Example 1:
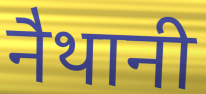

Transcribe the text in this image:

नैथानी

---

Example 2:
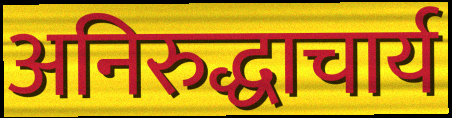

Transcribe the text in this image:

अनिरुद्धाचार्य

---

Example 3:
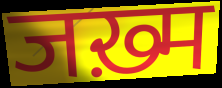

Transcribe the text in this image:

जख़्म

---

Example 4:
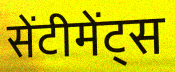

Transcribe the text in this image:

सेंटीमेंट्स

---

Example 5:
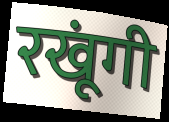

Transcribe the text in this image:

रखूंगी